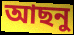
আছনু